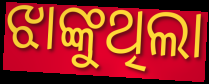
ଝାଙ୍କୁଥିଲା